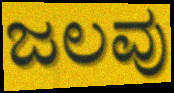
ಜಲವು